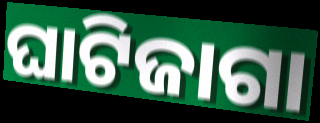
ଘାଟିଜାଗା